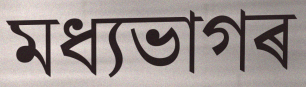
মধ্যভাগৰ